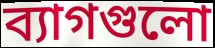
ব্যাগগুলো